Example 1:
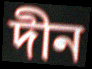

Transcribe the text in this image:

দীন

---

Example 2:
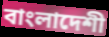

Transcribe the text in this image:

বাংলাদেশী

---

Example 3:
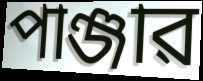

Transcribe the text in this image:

পাঞ্জাৱ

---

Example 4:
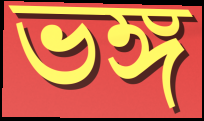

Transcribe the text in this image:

ভঙ্গ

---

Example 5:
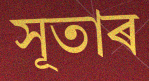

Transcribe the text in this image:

সূতাৰ